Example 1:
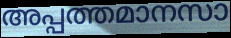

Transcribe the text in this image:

അപ്പത്തമാനസാ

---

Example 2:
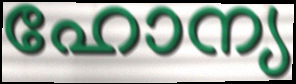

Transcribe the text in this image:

ഹോന്യ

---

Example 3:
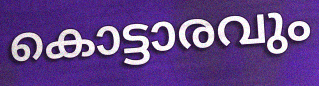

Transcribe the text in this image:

കൊട്ടാരവും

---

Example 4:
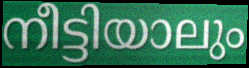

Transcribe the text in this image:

നീട്ടിയാലും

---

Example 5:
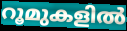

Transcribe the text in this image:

റൂമുകളിൽ